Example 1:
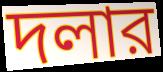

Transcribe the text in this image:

দলার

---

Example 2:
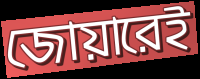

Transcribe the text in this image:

জোয়ারেই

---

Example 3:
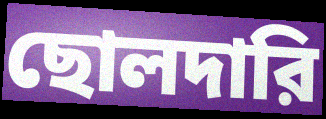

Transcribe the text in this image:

ছোলদারি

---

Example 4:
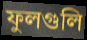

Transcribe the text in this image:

ফুলগুলি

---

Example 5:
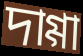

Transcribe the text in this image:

দাগ্গা